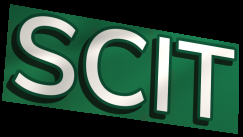
SCIT